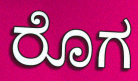
ರೊಗ